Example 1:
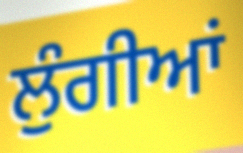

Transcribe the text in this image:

ਲੁੰਗੀਆਂ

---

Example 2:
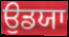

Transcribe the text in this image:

ਉਡਯਾ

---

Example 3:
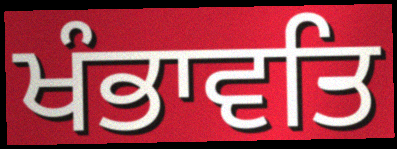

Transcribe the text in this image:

ਖੰਭਾਵਤਿ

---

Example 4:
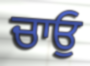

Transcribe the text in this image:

ਚਾਓੁ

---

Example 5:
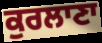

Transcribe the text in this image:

ਕੁਰਲਾਣਾ